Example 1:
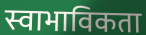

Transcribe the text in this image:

स्वाभाविकता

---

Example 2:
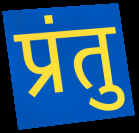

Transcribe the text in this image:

प्रंतु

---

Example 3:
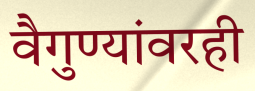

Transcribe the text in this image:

वैगुण्यांवरही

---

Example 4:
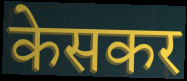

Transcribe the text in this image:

केसकर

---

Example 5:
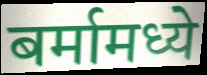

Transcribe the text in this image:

बर्मामध्ये